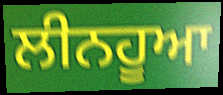
ਲੀਨਹੂਆ